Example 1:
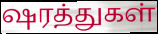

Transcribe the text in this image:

ஷரத்துகள்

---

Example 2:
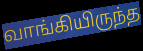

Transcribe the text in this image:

வாங்கியிருந்த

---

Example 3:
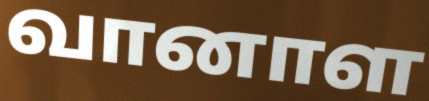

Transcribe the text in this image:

வானாள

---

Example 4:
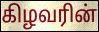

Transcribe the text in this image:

கிழவரின்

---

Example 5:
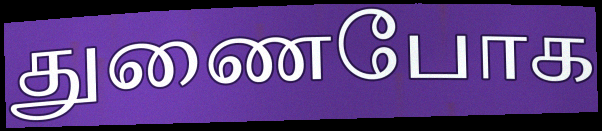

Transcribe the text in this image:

துணைபோக